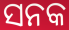
ସନକ